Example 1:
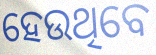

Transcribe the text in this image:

ହେଉଥିବେ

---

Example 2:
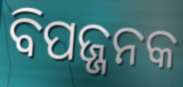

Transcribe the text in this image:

ବିପଜ୍ଜନକ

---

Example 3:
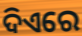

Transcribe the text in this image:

ଦିଏରେ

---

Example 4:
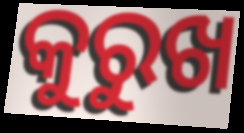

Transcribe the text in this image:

କୁରୁଖ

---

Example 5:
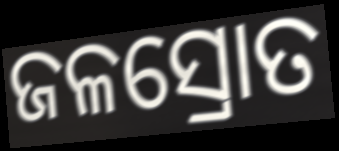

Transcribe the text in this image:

ଜଳସ୍ରୋତ